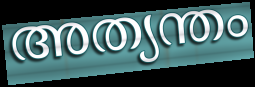
അത്യന്തം